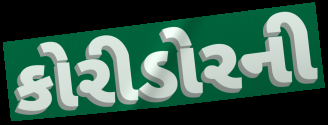
કોરીડોરની